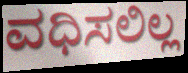
ವಧಿಸಲಿಲ್ಲ